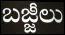
బజ్జీలు